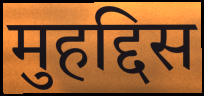
मुहद्दिस